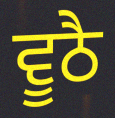
ਵੂਠੈ